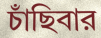
চাঁছিবার